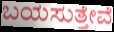
ಬಯಸುತ್ತೇವೆ